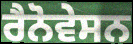
ਰੈਨੋਵੇਸਨ